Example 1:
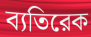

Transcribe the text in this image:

ব্যতিরেক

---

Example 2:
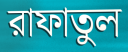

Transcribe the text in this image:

রাফাতুল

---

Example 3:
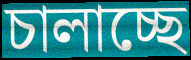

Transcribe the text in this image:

চালাচ্ছে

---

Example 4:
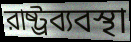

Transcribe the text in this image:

রাষ্ট্রব্যবস্থা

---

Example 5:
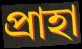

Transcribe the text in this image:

প্রাহা